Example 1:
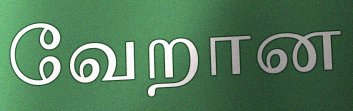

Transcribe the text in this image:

வேறான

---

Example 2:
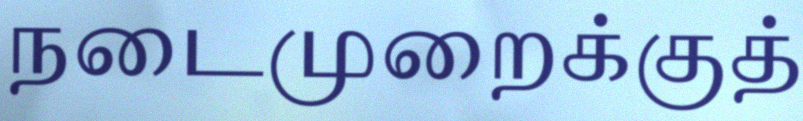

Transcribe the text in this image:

நடைமுறைக்குத்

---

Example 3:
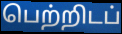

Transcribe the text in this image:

பெற்றிடப்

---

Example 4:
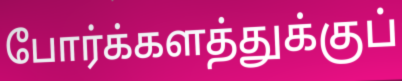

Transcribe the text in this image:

போர்க்களத்துக்குப்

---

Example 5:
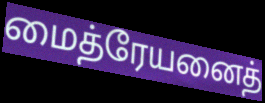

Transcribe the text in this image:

மைத்ரேயனைத்